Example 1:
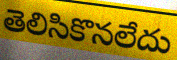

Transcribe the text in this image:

తెలిసికొనలేదు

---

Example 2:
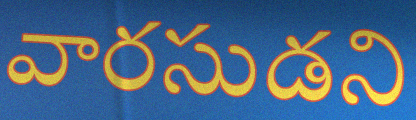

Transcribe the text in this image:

వారసుడని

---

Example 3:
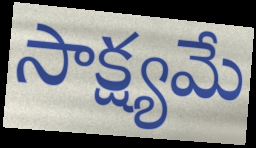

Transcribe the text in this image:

సాక్ష్యమే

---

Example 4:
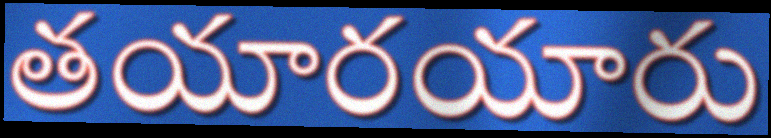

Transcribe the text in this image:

తయారయారు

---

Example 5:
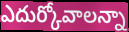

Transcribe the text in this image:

ఎదుర్కోవాలన్నా